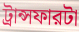
ট্রান্সফারটা